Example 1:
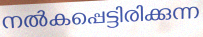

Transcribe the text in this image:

നൽകപ്പെട്ടിരിക്കുന്ന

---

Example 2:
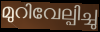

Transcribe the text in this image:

മുറിവേല്പിച്ചു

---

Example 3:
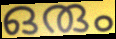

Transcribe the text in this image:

ഒരും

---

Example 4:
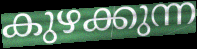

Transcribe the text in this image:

കുഴക്കുന്ന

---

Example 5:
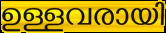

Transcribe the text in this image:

ഉള്ളവരായി